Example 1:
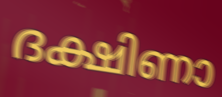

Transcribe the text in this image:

ദക്ഷിണാ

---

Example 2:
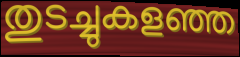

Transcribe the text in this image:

തുടച്ചുകളഞ്ഞ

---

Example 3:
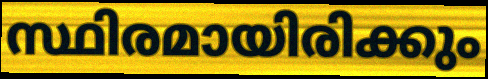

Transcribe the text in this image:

സ്ഥിരമായിരിക്കും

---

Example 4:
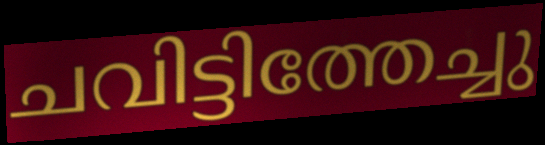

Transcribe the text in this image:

ചവിട്ടിത്തേച്ചു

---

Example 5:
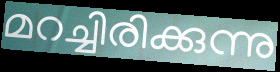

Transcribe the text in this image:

മറച്ചിരിക്കുന്നു